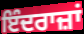
ਇੰਦਰਾਜ਼ਾਂ